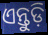
ଏନ୍ତୁଡ଼ି